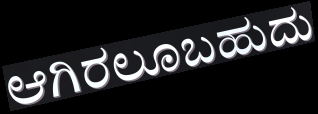
ಆಗಿರಲೂಬಹುದು